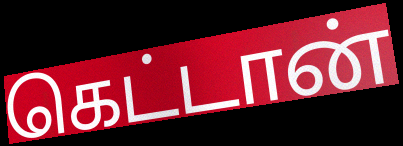
கெட்டான்